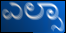
ಎಲ್ಸಾ